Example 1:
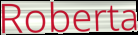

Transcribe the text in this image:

Roberta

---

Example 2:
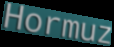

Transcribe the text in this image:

Hormuz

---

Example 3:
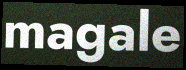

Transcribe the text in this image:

magale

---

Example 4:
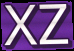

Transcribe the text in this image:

XZ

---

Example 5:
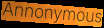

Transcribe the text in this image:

Annonymous